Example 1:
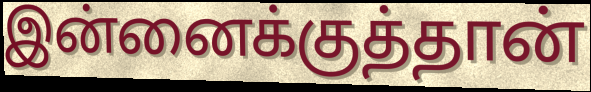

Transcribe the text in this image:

இன்னைக்குத்தான்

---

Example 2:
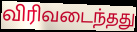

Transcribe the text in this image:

விரிவடைந்தது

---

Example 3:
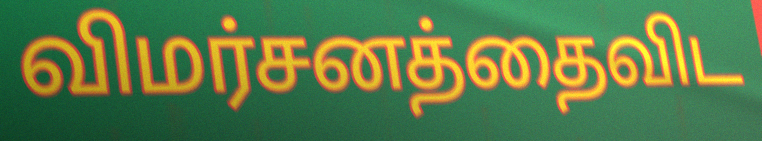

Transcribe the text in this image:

விமர்சனத்தைவிட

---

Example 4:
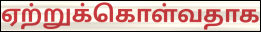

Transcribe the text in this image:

ஏற்றுக்கொள்வதாக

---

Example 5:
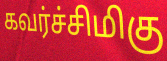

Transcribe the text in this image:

கவர்ச்சிமிகு